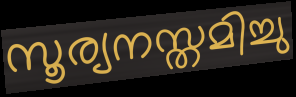
സൂര്യനസ്തമിച്ചു